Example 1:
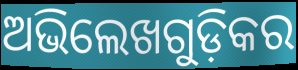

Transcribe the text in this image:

ଅଭିଲେଖଗୁଡ଼ିକର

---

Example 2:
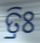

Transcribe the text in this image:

ତ୍ରିଃ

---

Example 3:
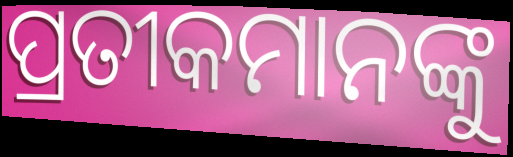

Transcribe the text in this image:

ପ୍ରତୀକମାନଙ୍କୁ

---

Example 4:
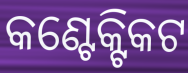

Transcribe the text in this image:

କଣ୍ଟେକ୍ଟିକଟ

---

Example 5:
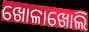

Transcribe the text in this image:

ଖୋଳାଖୋଲି